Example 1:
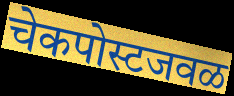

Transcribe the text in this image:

चेकपोस्टजवळ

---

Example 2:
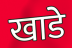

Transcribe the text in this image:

खाडे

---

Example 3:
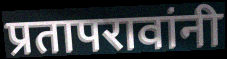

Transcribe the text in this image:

प्रतापरावांनी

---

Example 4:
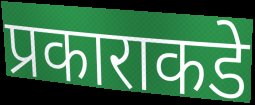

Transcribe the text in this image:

प्रकाराकडे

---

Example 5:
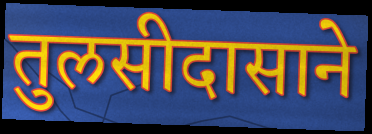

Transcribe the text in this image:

तुलसीदासाने